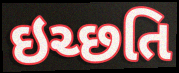
ઇચ્છતિ